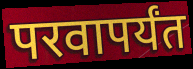
परवापर्यंत